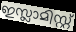
ഇസ്ലാമിസ്റ്റ്